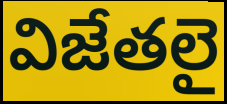
విజేతలై